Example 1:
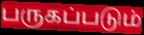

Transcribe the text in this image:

பருகப்படும்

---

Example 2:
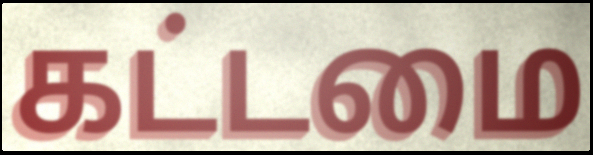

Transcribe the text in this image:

கட்டமை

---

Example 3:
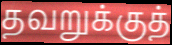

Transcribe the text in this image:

தவறுக்குத்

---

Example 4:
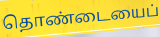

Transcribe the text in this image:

தொண்டையைப்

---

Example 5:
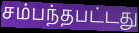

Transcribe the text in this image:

சம்பந்தபட்டது